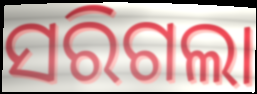
ସରିଗଲା